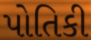
પોતિકી